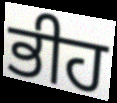
ਭੀਹ